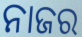
ନାଜର